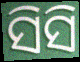
ସିସି